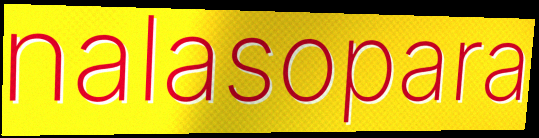
nalasopara